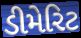
ડીમેરિટ